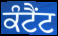
ਕੰਟੈਂਟ